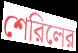
শেরিলের